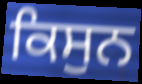
ਕਿਸੁਨ